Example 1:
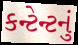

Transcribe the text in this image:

કન્ટેન્ટનું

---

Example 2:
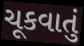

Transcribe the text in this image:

ચૂકવાતું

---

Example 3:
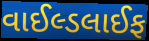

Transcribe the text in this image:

વાઈલ્ડલાઈફ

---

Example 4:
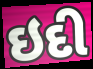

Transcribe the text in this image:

ઇદી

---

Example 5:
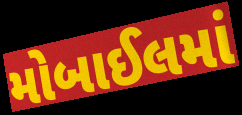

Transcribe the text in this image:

મોબાઈલમાં